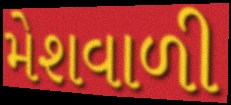
મેશવાળી